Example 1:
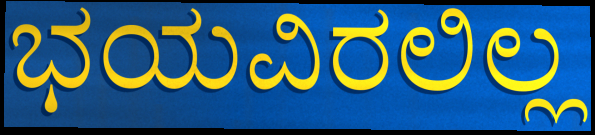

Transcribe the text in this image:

ಭಯವಿರಲಿಲ್ಲ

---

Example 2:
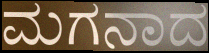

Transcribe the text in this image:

ಮಗನಾದ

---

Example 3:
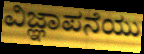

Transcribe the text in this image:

ವಿಜ್ಞಾಪನೆಯು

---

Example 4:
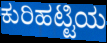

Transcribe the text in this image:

ಕುರಿಹಟ್ಟಿಯ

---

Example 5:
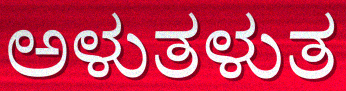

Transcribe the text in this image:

ಅಳುತಳುತ